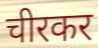
चीरकर